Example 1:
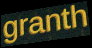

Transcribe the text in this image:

granth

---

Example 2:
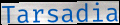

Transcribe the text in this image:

Tarsadia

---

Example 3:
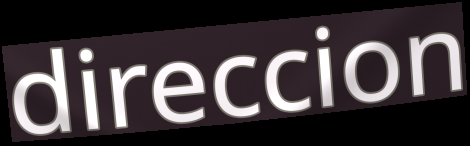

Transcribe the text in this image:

direccion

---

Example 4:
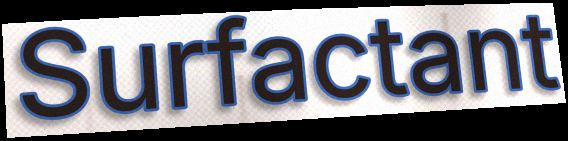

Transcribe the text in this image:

Surfactant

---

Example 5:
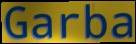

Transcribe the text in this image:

Garba